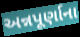
અન્નપૂર્ણાના